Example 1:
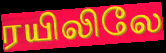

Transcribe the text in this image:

ரயிலிலே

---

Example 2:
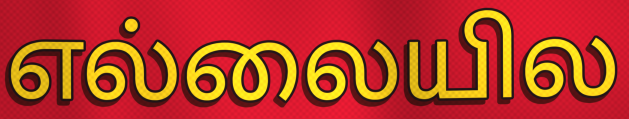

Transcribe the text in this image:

எல்லையில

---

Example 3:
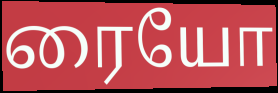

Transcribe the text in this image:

ரையோ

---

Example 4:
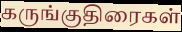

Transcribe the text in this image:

கருங்குதிரைகள்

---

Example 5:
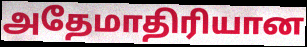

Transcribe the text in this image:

அதேமாதிரியான